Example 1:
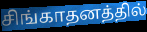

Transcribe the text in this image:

சிங்காதனத்தில்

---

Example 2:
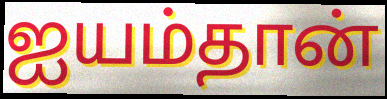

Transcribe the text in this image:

ஐயம்தான்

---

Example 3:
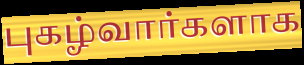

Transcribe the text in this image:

புகழ்வார்களாக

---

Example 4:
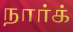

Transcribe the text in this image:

நார்க்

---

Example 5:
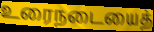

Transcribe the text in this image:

உரைநடையைத்